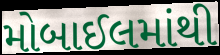
મોબાઈલમાંથી